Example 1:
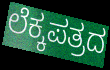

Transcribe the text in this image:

ಲೆಕ್ಕಪತ್ರದ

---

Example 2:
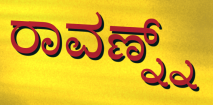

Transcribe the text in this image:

ರಾವಣ್ನ್ನ್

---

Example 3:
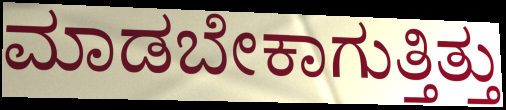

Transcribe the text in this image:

ಮಾಡಬೇಕಾಗುತ್ತಿತ್ತು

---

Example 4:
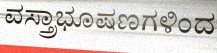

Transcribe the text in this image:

ವಸ್ತ್ರಾಭೂಷಣಗಳಿಂದ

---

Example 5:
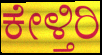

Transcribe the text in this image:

ಕೇಳ್ತಿರಿ